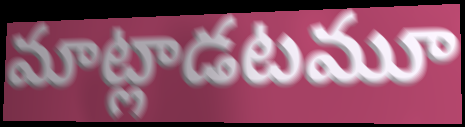
మాట్లాడటమూ